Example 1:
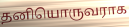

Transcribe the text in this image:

தனியொருவராக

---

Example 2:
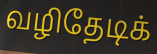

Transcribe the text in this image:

வழிதேடிக்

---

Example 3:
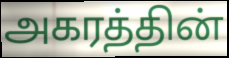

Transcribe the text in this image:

அகரத்தின்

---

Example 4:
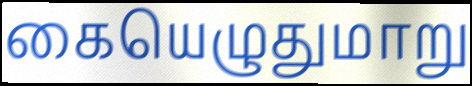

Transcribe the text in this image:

கையெழுதுமாறு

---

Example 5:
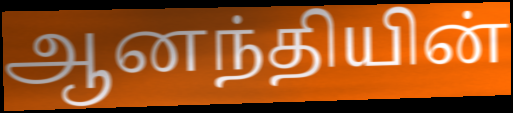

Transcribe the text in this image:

ஆனந்தியின்